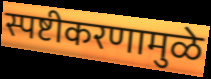
स्पष्टीकरणामुळे